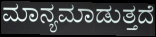
ಮಾನ್ಯಮಾಡುತ್ತದೆ